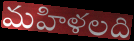
మహిళలది